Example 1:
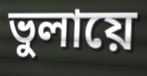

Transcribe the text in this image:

ভুলায়ে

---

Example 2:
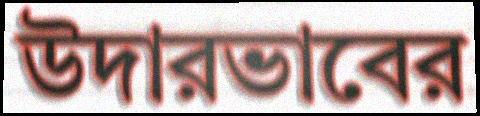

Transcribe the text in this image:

উদারভাবের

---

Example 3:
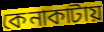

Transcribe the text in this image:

কেনাকাটায়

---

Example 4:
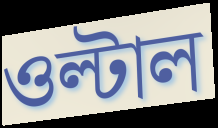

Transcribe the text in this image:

ওল্টাল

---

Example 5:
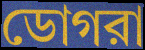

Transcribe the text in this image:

ডোগরা